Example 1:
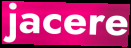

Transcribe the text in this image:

jacere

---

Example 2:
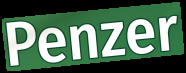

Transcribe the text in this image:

Penzer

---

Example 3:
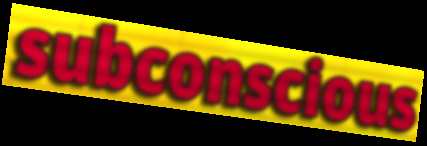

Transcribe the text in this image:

subconscious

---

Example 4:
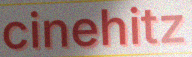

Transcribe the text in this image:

cinehitz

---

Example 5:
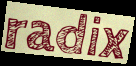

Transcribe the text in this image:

radix